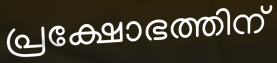
പ്രക്ഷോഭത്തിന്